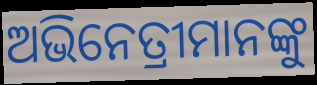
ଅଭିନେତ୍ରୀମାନଙ୍କୁ